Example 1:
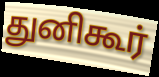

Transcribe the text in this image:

துனிகூர்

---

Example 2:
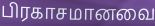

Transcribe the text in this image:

பிரகாசமானவை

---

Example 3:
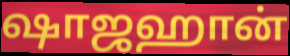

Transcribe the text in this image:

ஷாஜஹான்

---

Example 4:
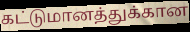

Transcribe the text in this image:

கட்டுமானத்துக்கான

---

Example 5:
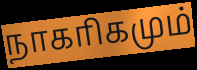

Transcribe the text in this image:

நாகரிகமும்